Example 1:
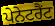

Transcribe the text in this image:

ਪੇਨੇਟਰੈਂਟ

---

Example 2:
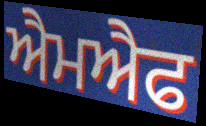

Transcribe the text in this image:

ਐਮਐਫ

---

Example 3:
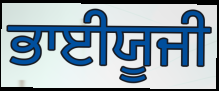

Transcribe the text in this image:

ਭਾਈਯੂਜੀ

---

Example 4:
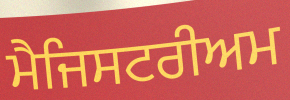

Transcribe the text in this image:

ਮੈਜਿਸਟਰੀਅਮ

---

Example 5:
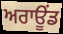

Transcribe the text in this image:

ਅਰਾਊਂਡ